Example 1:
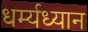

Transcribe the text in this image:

धर्म्यध्यान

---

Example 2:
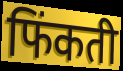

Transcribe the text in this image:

फिंकती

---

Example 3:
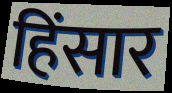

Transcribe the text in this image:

हिंसार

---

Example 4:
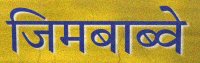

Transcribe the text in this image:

जिमबाब्वे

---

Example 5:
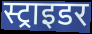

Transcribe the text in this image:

स्ट्राइडर